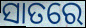
ସାତରେ